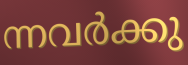
ന്നവർക്കു